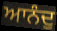
ਆਨੰਦੁ